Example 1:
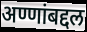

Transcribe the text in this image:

अण्णांबद्दल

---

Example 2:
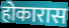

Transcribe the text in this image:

होकारास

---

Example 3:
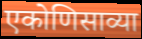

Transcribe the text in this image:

एकोणिसाव्या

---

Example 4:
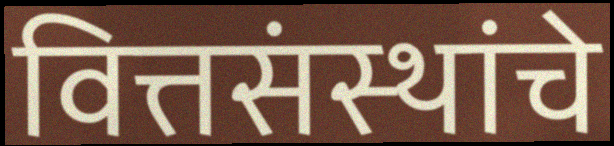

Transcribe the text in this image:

वित्तसंस्थांचे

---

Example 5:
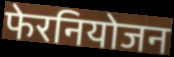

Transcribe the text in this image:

फेरनियोजन